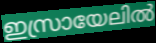
ഇസ്രായേലിൽ